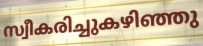
സ്വീകരിച്ചുകഴിഞ്ഞു